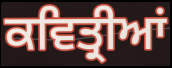
ਕਵਿਤ੍ਰੀਆਂ